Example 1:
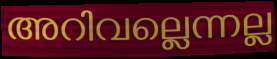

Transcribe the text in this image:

അറിവല്ലെന്നല്ല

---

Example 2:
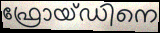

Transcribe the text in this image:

ഫ്രോയ്ഡിനെ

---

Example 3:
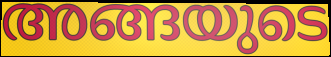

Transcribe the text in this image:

അങ്ങയുടെ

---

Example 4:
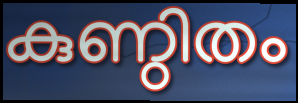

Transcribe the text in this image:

കുണ്ഠിതം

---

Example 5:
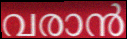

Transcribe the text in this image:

വരാൻ